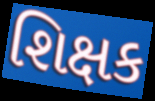
શિક્ષક